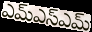
ఎమ్ఎస్ఎమ్